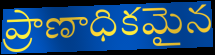
ప్రాణాధికమైన